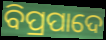
ବିପ୍ରପାଦେ